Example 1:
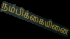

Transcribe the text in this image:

நம்பிக்கையினை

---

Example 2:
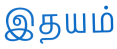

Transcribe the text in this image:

இதயம்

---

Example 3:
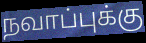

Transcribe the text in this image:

நவாப்புக்கு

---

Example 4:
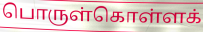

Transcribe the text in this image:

பொருள்கொள்ளக்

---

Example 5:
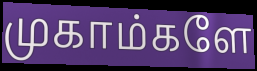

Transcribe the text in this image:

முகாம்களே